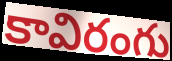
కావిరంగు